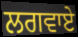
ਲਗਵਾਏ